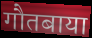
गौतबाया